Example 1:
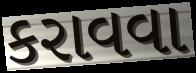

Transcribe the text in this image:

કરાવવા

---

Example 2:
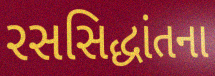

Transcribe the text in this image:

રસસિદ્ધાંતના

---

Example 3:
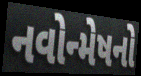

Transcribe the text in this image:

નવોન્મેષનો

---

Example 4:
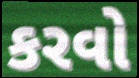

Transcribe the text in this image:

કરવો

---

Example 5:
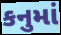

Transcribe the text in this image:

કનુમાં